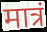
मात्रं